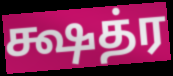
க்ஷத்ர